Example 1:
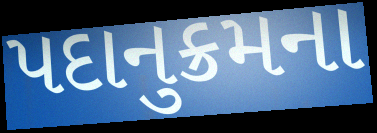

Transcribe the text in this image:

પદાનુક્રમના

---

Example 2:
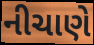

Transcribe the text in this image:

નીચાણે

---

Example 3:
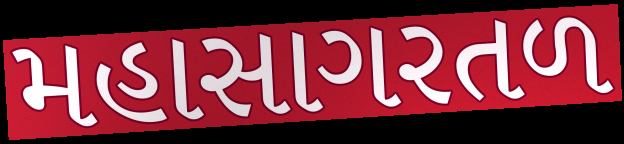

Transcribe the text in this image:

મહાસાગરતળ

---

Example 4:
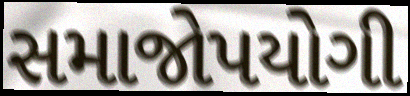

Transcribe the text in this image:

સમાજોપયોગી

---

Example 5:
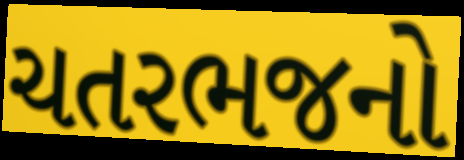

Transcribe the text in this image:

ચતરભજનો